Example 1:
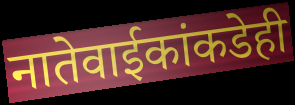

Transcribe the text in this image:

नातेवाईकांकडेही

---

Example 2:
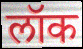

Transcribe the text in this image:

लॉक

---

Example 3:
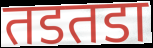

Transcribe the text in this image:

तडतडा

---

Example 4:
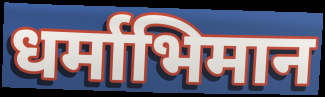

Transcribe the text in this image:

धर्माभिमान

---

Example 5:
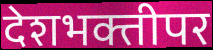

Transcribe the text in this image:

देशभक्तीपर